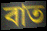
বাত